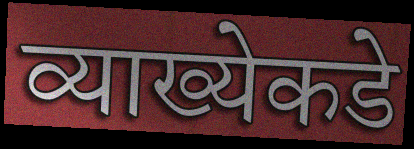
व्याख्येकडे